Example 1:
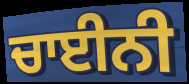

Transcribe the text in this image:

ਚਾਈਨੀ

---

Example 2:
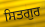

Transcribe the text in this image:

ਸਿਤਗੁਰ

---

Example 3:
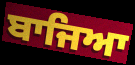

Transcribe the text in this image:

ਬਾਜਿਆ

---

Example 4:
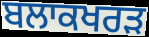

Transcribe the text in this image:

ਬਲਾਕਖਰੜ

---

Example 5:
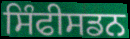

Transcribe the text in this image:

ਸਿੰਫੀਸਡਨ